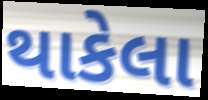
થાકેલા